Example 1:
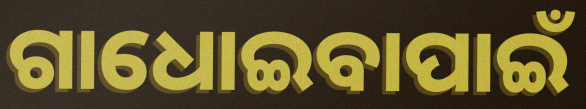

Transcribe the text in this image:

ଗାଧୋଇବାପାଇଁ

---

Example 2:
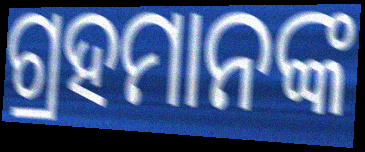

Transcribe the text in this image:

ଗ୍ରହମାନଙ୍କ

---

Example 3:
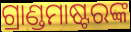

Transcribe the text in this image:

ଗ୍ରାଣ୍ଡମାଷ୍ଟରଙ୍କ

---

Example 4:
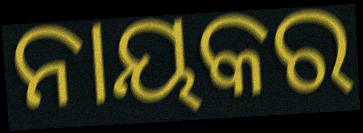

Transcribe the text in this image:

ନାୟକର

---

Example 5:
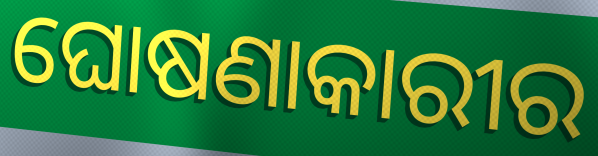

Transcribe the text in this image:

ଘୋଷଣାକାରୀର